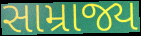
સામ્રાજ્ય